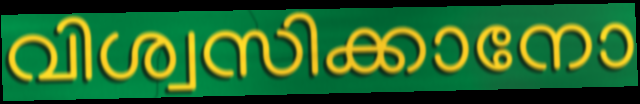
വിശ്വസിക്കാനോ